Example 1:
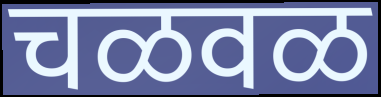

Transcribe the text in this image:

चळवळ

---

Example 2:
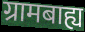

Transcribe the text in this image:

ग्रामबाह्य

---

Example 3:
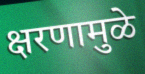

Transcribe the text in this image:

क्षरणामुळे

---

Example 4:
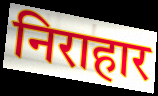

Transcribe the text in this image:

निराहार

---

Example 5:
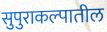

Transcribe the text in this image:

सुपुराकल्पातील